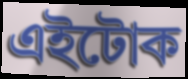
এইটোক